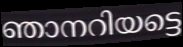
ഞാനറിയട്ടെ